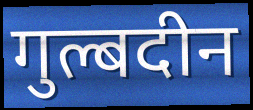
गुल्बदीन